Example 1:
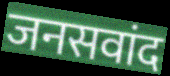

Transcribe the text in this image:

जनसवांद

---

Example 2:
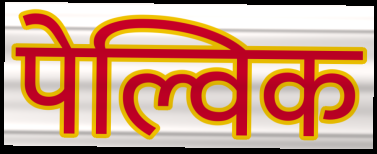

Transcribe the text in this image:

पेल्विक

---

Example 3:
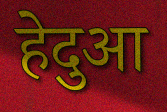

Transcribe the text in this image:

हेदुआ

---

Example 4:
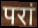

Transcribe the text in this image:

परां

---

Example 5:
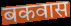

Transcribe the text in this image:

बकवास